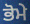
ਭੋਮੇ